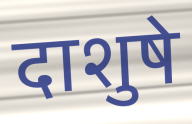
दाशुषे